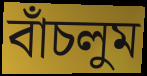
বাঁচলুম